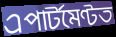
এপাৰ্টমেণ্টত